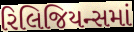
રિલિજિયન્સમાં